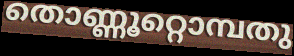
തൊണ്ണൂറ്റൊമ്പതു